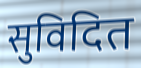
सुविदित